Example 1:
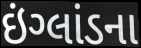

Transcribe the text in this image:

ઇંગ્લાંડના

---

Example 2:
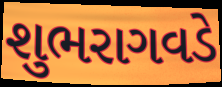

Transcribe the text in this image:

શુભરાગવડે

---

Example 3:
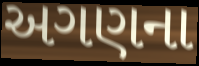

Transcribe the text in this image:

અગણના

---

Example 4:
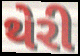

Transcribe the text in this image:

થેરી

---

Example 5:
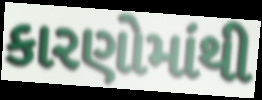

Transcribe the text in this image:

કારણોમાંથી